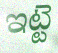
ఇట్టె